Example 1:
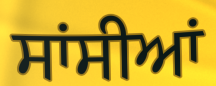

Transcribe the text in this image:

ਸਾਂਸੀਆਂ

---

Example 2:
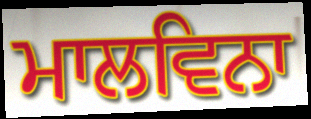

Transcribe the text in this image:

ਮਾਲਵਿਨਾ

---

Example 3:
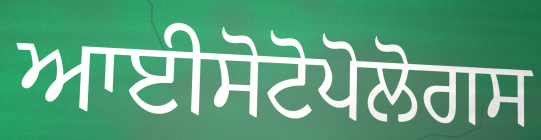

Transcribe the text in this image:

ਆਈਸੋਟੋਪੋਲੋਗਸ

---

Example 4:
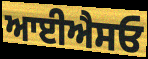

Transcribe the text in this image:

ਆਈਐਸਓ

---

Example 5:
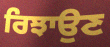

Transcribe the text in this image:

ਰਿਝਾਉਣ